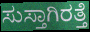
ಸುಸ್ತಾಗಿರತ್ತೆ